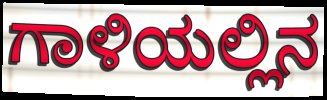
ಗಾಳಿಯಲ್ಲಿನ